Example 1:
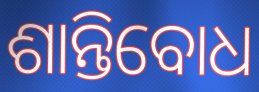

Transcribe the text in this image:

ଶାନ୍ତିବୋଧ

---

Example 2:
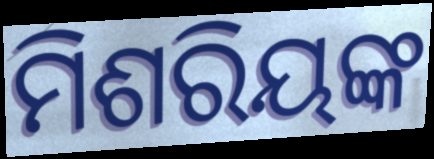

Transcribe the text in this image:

ମିଶରିୟଙ୍କ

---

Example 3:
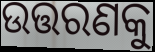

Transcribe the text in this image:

ଉତ୍ତରଣକୁ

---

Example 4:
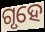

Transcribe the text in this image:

ଗୃହେ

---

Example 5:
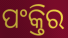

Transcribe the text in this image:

ପଂକ୍ତିର